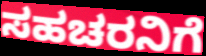
ಸಹಚರನಿಗೆ